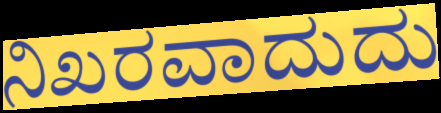
ನಿಖರವಾದುದು